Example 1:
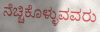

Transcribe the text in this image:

ನೆಚ್ಚಿಕೊಳ್ಳುವವರು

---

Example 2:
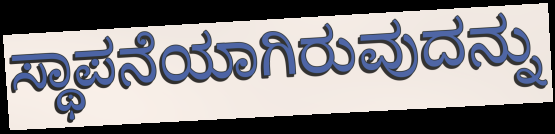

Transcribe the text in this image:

ಸ್ಥಾಪನೆಯಾಗಿರುವುದನ್ನು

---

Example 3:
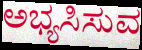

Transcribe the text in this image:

ಅಭ್ಯಸಿಸುವ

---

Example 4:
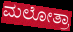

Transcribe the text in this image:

ಮಲೋತ್ರಾ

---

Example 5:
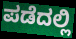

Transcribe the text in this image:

ಪಡೆದಲ್ಲಿ